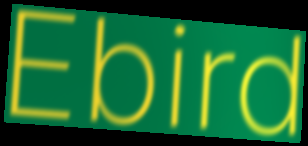
Ebird